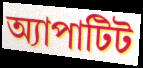
অ্যাপাটিট